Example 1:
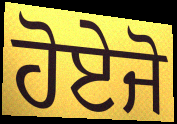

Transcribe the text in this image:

ਹੋਏਜੋ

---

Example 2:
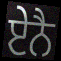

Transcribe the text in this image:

ਏਨੈ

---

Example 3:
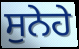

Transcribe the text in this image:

ਸੁਨੇਹੇ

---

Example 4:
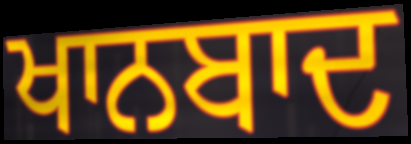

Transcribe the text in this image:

ਖਾਨਬਾਦ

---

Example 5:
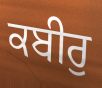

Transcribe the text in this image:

ਕਬੀਰੁ